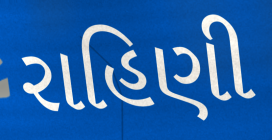
રાહિણી